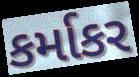
કર્માકર